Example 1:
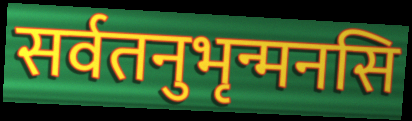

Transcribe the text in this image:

सर्वतनुभृन्मनसि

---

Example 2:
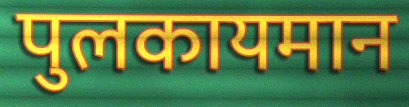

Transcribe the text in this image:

पुलकायमान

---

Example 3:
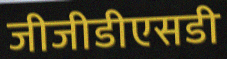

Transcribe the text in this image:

जीजीडीएसडी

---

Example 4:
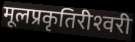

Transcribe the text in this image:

मूलप्रकृतिरीश्वरी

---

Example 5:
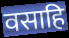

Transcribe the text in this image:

वसाहि